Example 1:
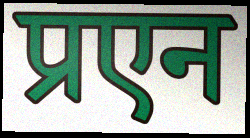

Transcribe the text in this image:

प्रएन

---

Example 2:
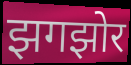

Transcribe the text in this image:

झगझोर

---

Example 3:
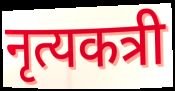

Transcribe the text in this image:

नृत्यकत्री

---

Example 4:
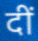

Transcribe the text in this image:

दीं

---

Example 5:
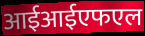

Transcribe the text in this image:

आईआईएफएल